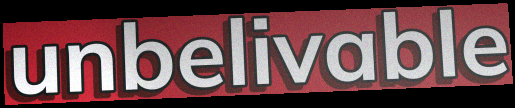
unbelivable